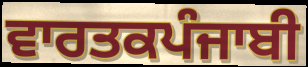
ਵਾਰਤਕਪੰਜਾਬੀ